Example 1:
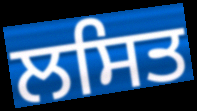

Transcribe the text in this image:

ਲਸਿਤ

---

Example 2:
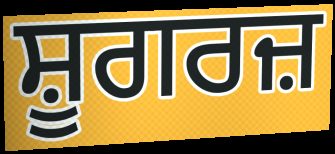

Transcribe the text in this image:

ਸ਼ੂਗਰਜ਼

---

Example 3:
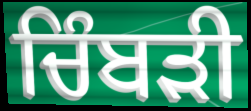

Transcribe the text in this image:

ਚਿੰਬੜੀ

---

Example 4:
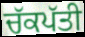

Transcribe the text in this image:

ਚੱਕਪੱਤੀ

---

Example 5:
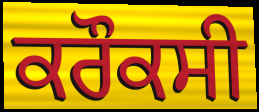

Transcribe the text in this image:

ਕਰੌਕਸੀ